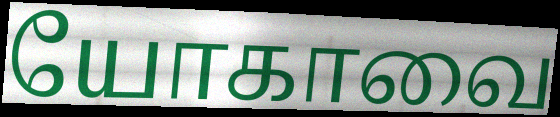
யோகாவை